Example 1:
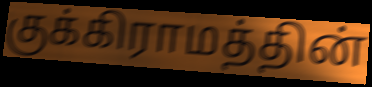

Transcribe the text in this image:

குக்கிராமத்தின்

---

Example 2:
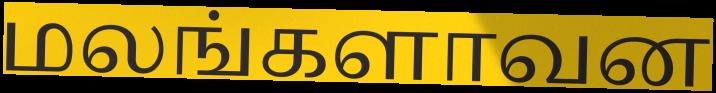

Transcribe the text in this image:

மலங்களாவன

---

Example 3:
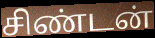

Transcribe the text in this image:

சிண்டன்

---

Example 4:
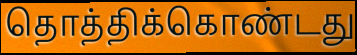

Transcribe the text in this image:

தொத்திக்கொண்டது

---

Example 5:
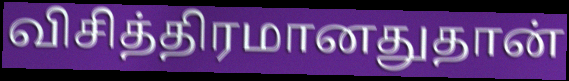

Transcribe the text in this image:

விசித்திரமானதுதான்